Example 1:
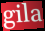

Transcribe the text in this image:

gila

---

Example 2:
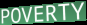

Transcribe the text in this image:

POVERTY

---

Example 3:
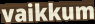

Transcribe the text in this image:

vaikkum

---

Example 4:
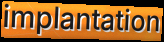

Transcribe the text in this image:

implantation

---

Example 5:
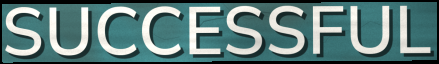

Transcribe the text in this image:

SUCCESSFUL